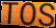
TOS